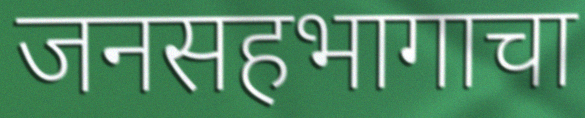
जनसहभागाचा